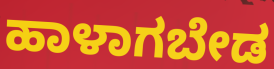
ಹಾಳಾಗಬೇಡ